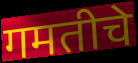
गमतीचे